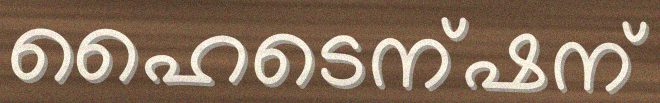
ഹൈടെന്ഷന്